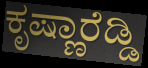
ಕೃಷ್ಣಾರೆಡ್ಡಿ